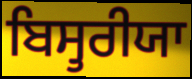
ਬਿਸ੍ਤਰੀਯਾ